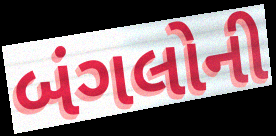
બંગલોની